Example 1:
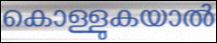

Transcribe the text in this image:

കൊള്ളുകയാൽ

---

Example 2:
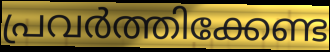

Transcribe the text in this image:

പ്രവർത്തിക്കേണ്ട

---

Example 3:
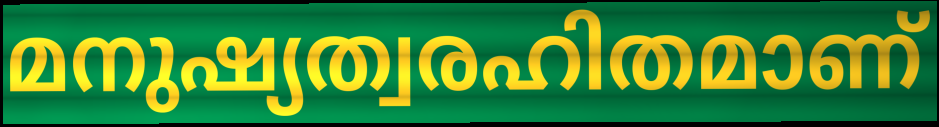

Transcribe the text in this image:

മനുഷ്യത്വരഹിതമാണ്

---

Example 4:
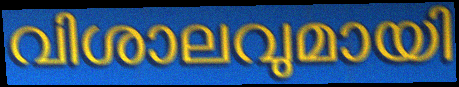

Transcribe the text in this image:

വിശാലവുമായി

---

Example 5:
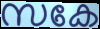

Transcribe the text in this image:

സകേ